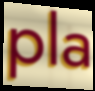
pla